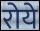
रोये